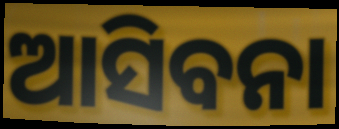
ଆସିବନା